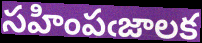
సహింపఁజాలక